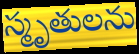
స్మృతులను